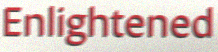
Enlightened